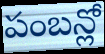
పంబన్లో